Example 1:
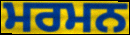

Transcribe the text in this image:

ਮਰਮਨ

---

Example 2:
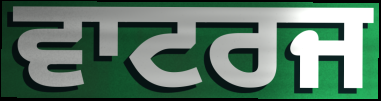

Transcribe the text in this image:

ਵਾਟਰਜ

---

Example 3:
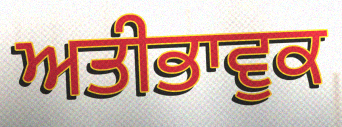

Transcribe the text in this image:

ਅਤੀਭਾਵੁਕ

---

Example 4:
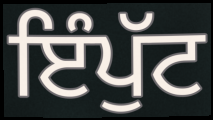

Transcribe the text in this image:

ਇੰਪੁੱਟ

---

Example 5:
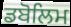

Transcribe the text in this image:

ਡਬੋਲਿਮ